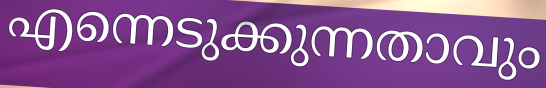
എന്നെടുക്കുന്നതാവും